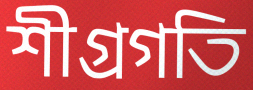
শীগ্রগতি